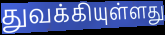
துவக்கியுள்ளது